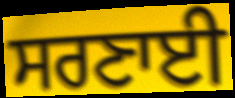
ਸਰਣਾਈ